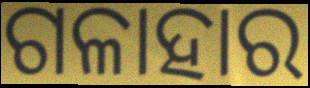
ଗଳାହାର